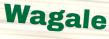
Wagale